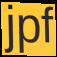
jpf